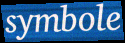
symbole